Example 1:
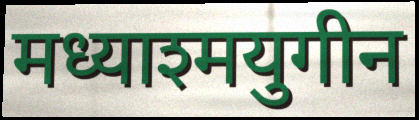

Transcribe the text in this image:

मध्याश्मयुगीन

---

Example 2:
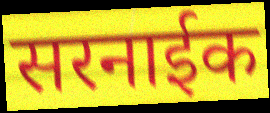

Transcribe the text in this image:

सरनाईक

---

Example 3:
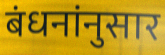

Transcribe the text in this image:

बंधनांनुसार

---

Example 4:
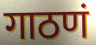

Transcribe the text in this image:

गाठणं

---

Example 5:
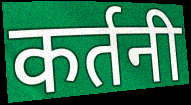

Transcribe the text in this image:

कर्तनी